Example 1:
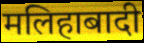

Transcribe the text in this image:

मलिहाबादी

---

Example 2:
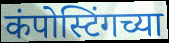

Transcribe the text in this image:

कंपोस्टिंगच्या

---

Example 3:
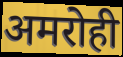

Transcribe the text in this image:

अमरोही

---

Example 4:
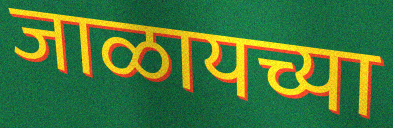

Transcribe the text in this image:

जाळायच्या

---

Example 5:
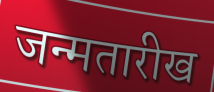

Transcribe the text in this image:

जन्मतारीख